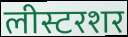
लीस्टरशर